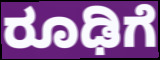
ರೂಢಿಗೆ